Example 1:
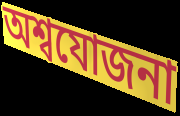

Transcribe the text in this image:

অশ্বযোজনা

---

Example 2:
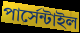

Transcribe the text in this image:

পার্সেন্টাইল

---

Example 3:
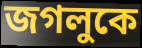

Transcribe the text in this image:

জগলুকে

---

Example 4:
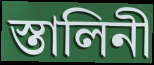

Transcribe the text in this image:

স্তালিনী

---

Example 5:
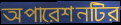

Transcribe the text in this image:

অপারেশনটির